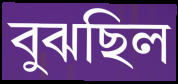
বুঝছিল